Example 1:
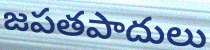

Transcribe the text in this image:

జపతపాదులు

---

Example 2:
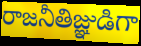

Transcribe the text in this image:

రాజనీతిజ్ఞుడిగా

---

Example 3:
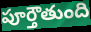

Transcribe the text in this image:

పూర్తౌతుంది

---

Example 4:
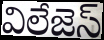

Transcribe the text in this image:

విలేజెస్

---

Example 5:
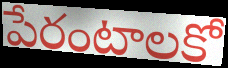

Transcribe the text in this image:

పేరంటాలకో